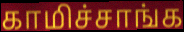
காமிச்சாங்க